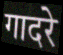
गादरे